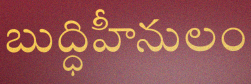
బుద్ధిహీనులం